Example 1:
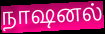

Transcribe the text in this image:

நாஷனல்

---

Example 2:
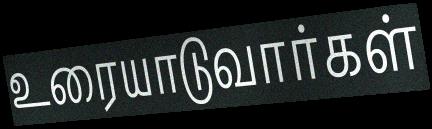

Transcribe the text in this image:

உரையாடுவார்கள்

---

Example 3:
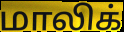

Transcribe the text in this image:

மாலிக்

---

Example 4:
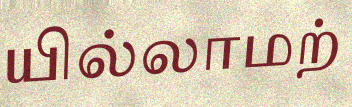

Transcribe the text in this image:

யில்லாமற்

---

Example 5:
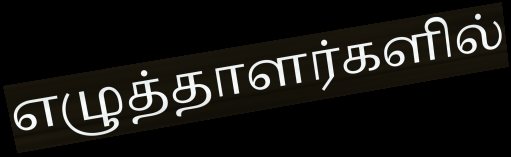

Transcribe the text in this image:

எழுத்தாளர்களில்